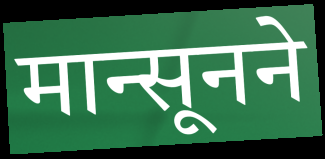
मान्सूनने